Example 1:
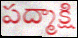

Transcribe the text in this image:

పద్మాక్షి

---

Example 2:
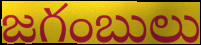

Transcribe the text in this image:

జగంబులు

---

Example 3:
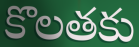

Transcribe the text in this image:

కొలతకు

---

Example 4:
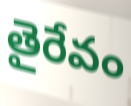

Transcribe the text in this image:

తైరేవం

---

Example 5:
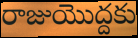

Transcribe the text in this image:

రాజుయొద్దకు